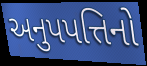
અનુપપત્તિનો